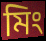
মিং